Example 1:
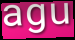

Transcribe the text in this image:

agu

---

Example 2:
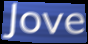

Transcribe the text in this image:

Jove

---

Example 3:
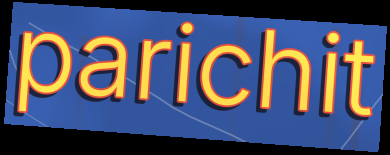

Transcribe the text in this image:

parichit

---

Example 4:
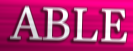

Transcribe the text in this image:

ABLE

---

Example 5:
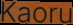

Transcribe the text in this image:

Kaoru